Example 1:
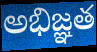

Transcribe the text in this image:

అభిజ్ఞత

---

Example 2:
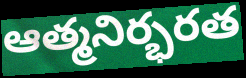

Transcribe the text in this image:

ఆత్మనిర్భరత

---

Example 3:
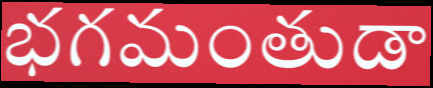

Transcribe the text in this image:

భగమంతుడా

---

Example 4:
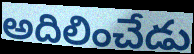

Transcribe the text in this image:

అదిలించేడు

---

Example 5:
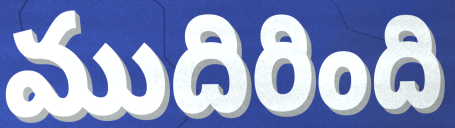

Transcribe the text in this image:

ముదిరింది